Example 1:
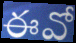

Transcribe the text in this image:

ఈవో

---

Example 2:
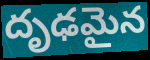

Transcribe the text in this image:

దృఢమైన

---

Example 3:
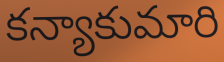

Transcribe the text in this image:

కన్యాకుమారి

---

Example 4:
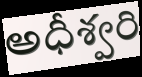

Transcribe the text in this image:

అధీశ్వరి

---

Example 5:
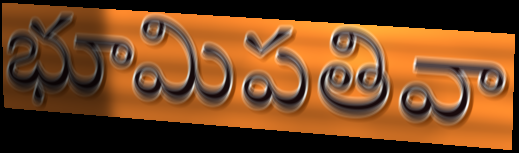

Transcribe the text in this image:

భూమిపతివా